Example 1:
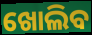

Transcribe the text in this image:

ଖୋଲିବ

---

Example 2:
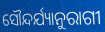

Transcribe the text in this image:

ସୌନ୍ଦର୍ଯ୍ୟାନୁରାଗୀ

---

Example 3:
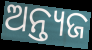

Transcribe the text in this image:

ଅନ୍ତ୍ୟଜ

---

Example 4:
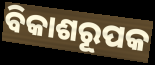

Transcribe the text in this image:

ବିକାଶରୂପକ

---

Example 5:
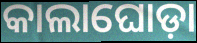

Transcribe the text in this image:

କାଲାଘୋଡ଼ା